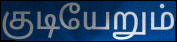
குடியேறும்